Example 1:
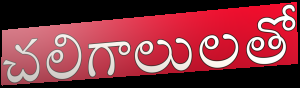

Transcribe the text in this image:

చలిగాలులతో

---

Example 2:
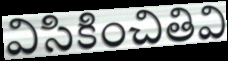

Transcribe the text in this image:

విసికించితివి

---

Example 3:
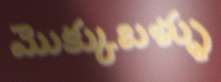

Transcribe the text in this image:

మొక్కుబళ్ళు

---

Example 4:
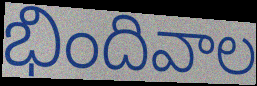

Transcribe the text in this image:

భిందివాల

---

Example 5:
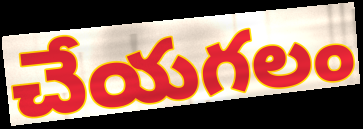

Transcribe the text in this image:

చేయగలం